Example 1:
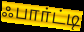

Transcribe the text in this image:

ஃபார்ட்டி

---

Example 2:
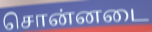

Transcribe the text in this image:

சொன்னடை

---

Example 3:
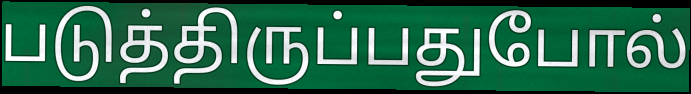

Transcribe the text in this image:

படுத்திருப்பதுபோல்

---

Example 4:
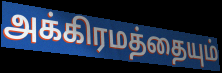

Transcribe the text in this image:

அக்கிரமத்தையும்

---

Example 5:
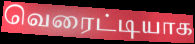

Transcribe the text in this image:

வெரைட்டியாக